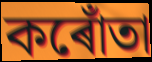
কৰোঁতা